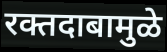
रक्तदाबामुळे